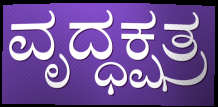
ವೃದ್ಧಕ್ಷತ್ರ